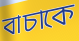
বাচাকে